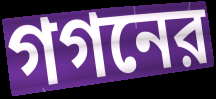
গগনের